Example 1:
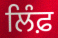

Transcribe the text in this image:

ਲਿੰਫ਼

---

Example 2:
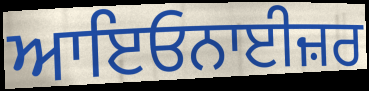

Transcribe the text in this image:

ਆਇਓਨਾਈਜ਼ਰ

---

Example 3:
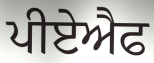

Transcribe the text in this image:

ਪੀਏਐਫ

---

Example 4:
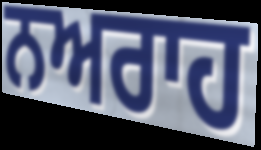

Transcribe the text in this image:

ਨਅਰਾਹ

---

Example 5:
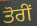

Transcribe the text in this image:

ਤੋਰੀਂ